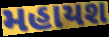
મહાયશ